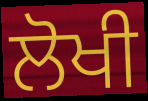
ਲੋਖੀ